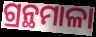
ଗ୍ରନ୍ଥମାଳା